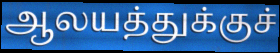
ஆலயத்துக்குச்